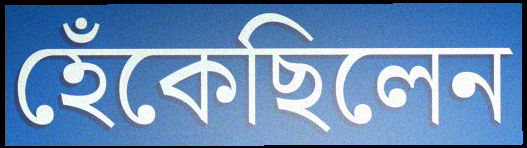
হেঁকেছিলেন